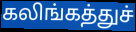
கலிங்கத்துச்